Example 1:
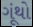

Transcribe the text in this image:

ગૂંથો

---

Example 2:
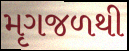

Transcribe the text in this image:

મૃગજળથી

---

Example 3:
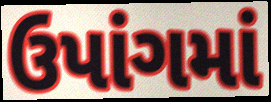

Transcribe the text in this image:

ઉપાંગમાં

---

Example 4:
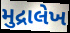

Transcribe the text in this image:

મુદ્રાલેખ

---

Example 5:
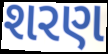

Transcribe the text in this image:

શરણ